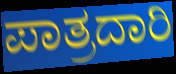
ಪಾತ್ರದಾರಿ